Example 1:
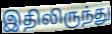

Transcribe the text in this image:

இதிலிருந்து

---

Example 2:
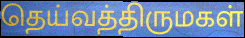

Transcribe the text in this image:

தெய்வத்திருமகள்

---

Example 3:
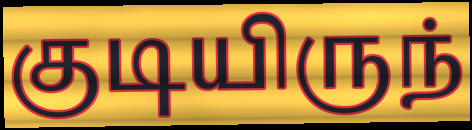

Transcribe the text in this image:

குடியிருந்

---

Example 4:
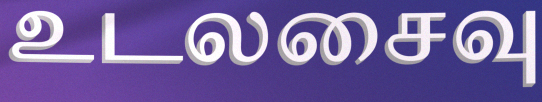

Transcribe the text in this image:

உடலசைவு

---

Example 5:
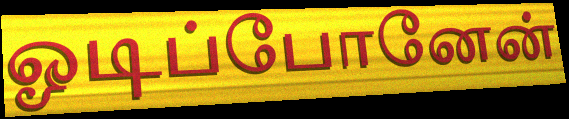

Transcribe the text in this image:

ஓடிப்போனேன்